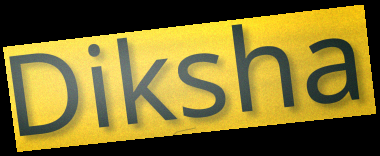
Diksha